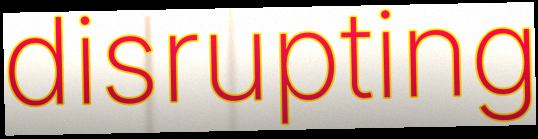
disrupting